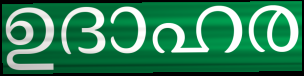
ഉദാഹര